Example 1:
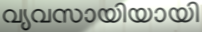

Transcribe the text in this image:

വ്യവസായിയായി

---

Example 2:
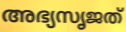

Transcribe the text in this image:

അഭ്യസൃജത്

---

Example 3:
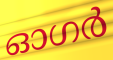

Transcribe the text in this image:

ഓഗർ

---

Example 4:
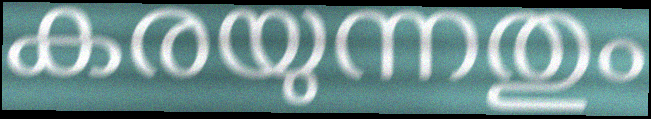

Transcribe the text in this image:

കരയുന്നതും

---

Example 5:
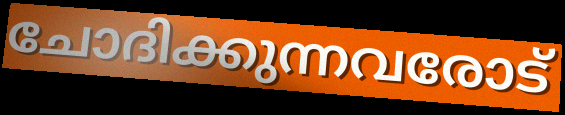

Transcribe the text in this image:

ചോദിക്കുന്നവരോട്